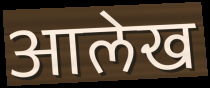
आलेख